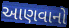
આણવાનો